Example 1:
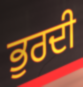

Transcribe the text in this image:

ਭੁਰਦੀ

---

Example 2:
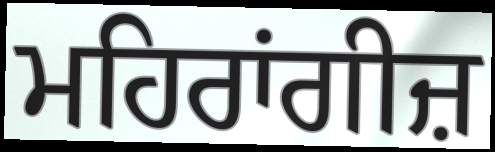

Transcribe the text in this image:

ਮਹਿਰਾਂਗੀਜ਼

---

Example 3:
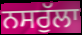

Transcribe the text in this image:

ਨਸਰੁੱਲਾ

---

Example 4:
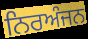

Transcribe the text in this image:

ਨਿਰਅੰਜਨ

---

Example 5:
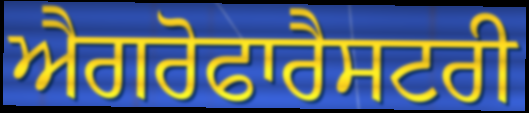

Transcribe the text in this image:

ਐਗਰੋਫਾਰੈਸਟਰੀ